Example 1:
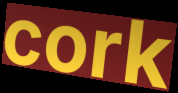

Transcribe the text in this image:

cork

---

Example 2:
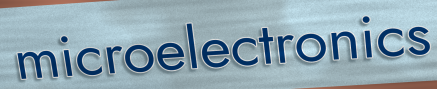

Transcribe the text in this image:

microelectronics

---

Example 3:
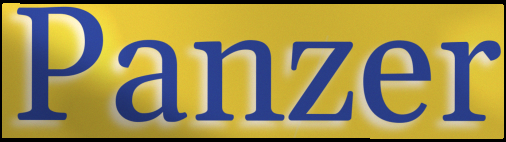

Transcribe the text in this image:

Panzer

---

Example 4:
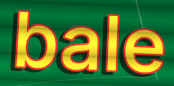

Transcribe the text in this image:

bale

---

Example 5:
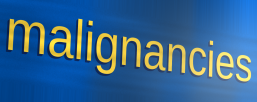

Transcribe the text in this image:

malignancies